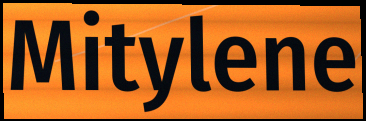
Mitylene